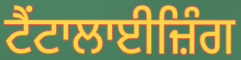
ਟੈਂਟਾਲਾਈਜ਼ਿੰਗ